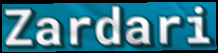
Zardari